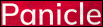
Panicle